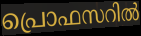
പ്രൊഫസറിൽ